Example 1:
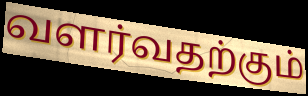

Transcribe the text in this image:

வளர்வதற்கும்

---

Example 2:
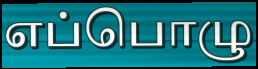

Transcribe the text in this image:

எப்பொழு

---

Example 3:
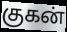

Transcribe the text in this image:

குகன்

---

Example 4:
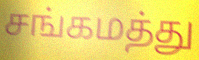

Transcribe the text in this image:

சங்கமத்து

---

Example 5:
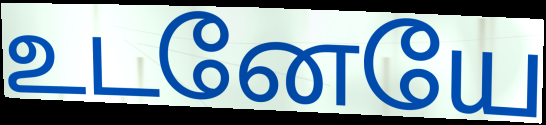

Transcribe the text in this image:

உடனேயே